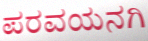
ಪರವಯನಗಿ